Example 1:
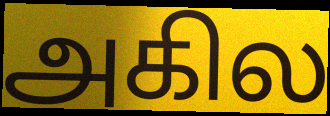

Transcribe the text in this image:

அகில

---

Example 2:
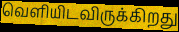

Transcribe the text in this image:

வெளியிடவிருக்கிறது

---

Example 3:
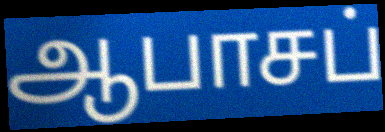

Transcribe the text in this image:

ஆபாசப்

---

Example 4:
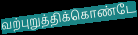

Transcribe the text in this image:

வற்புறுத்திக்கொண்டே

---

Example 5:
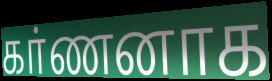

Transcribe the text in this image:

கர்ணனாக